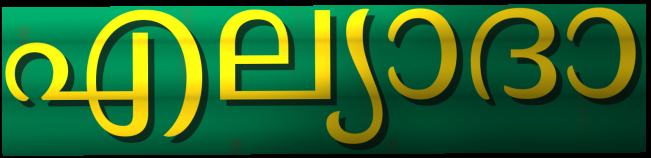
എല്യാദാ